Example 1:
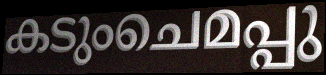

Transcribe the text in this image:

കടുംചെമപ്പു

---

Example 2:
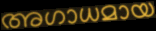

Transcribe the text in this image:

അഗാധമായ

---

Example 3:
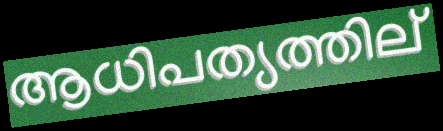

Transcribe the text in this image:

ആധിപത്യത്തില്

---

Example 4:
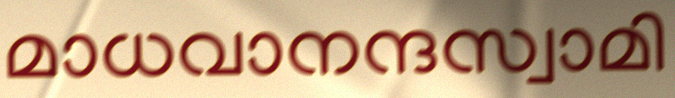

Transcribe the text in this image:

മാധവാനന്ദസ്വാമി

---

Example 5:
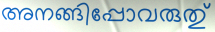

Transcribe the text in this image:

അനങ്ങിപ്പോവരുതു്